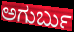
ಅಗುರ್ಬು